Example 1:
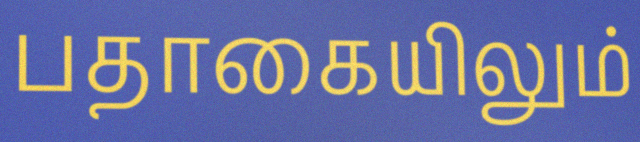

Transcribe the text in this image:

பதாகையிலும்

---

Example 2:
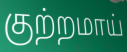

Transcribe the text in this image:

குற்றமாய்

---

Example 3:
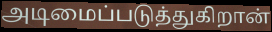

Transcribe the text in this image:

அடிமைப்படுத்துகிறான்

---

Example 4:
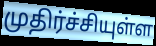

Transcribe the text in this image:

முதிர்ச்சியுள்ள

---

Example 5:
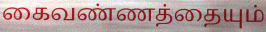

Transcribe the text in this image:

கைவண்ணத்தையும்